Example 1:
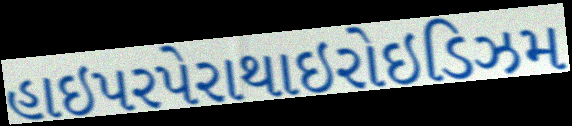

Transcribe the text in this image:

હાઇપરપેરાથાઇરોઇડિઝમ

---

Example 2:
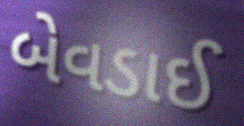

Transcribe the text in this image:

બેવડાઈ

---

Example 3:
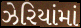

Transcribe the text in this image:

ઝેરિયાંમાં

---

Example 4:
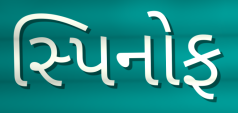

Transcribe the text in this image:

સ્પિનોફ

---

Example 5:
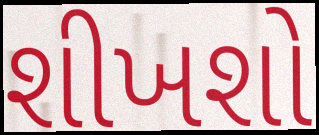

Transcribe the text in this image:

શીખશો